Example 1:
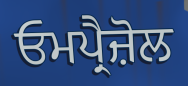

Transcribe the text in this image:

ਓਮਪ੍ਰੈਜ਼ੋਲ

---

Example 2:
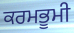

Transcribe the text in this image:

ਕਰਮਭੂਮੀ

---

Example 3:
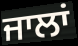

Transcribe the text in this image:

ਜਾਲਾਂ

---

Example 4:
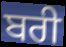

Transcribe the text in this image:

ਬਰੀ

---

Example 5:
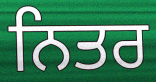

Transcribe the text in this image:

ਨਿਤਰ